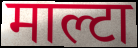
माल्टा